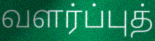
வளர்ப்புத்